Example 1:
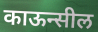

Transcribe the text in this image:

काऊन्सील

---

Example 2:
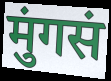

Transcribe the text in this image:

मुंगसं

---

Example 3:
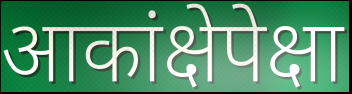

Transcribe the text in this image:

आकांक्षेपेक्षा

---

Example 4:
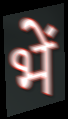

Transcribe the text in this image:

भें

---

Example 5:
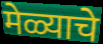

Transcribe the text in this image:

मेळ्याचे